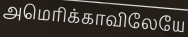
அமெரிக்காவிலேயே